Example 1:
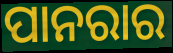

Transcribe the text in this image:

ପାନରାର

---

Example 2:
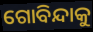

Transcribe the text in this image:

ଗୋବିନ୍ଦାକୁ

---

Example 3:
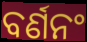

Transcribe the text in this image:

ବର୍ଣନଂ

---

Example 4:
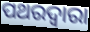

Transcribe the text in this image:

ପଥରଦ୍ୱାରା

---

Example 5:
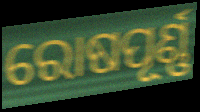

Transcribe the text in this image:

ରୋଷପୂର୍ଣ୍ଣ